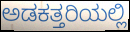
ಅಡಕತ್ತರಿಯಲ್ಲಿ